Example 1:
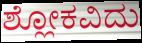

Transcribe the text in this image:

ಶ್ಲೋಕವಿದು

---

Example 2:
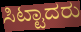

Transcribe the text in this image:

ಸಿಟ್ಟಾದರು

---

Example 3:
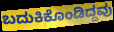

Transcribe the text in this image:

ಬದುಕಿಕೊಂಡಿದ್ದವು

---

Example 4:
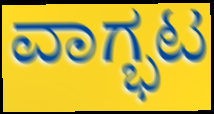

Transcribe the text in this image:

ವಾಗ್ಭಟ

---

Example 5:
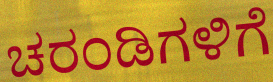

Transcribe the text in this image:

ಚರಂಡಿಗಳಿಗೆ